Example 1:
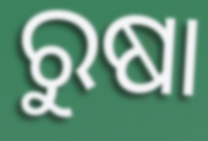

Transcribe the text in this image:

ରୁଷା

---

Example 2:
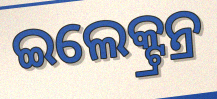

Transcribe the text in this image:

ଇଲେକ୍ଟ୍ରନ୍ର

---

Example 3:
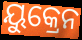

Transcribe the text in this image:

ୟୁକ୍ରେନ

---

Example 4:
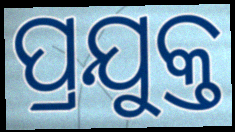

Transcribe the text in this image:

ପ୍ରଯୁକ୍ତ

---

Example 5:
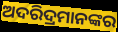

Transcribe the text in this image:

ଅଦରିଦ୍ରମାନଙ୍କର